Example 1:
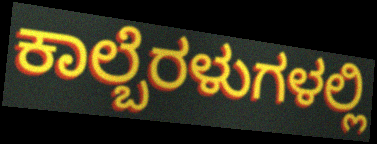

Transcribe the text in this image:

ಕಾಲ್ಬೆರಳುಗಳಲ್ಲಿ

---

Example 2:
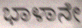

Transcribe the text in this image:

ಭಾಳಾನೇ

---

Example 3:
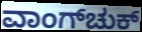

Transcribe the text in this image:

ವಾಂಗ್‌ಚುಕ್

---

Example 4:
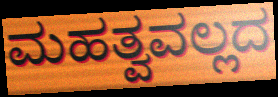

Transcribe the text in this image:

ಮಹತ್ವವಲ್ಲದ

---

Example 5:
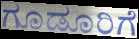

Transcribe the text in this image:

ಗೂಡೂರಿಗೆ